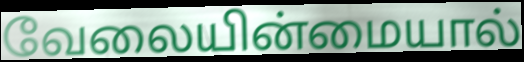
வேலையின்மையால்